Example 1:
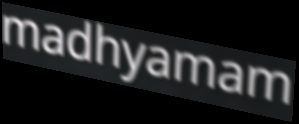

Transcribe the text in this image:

madhyamam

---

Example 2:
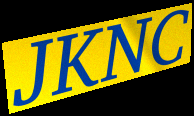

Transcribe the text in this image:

JKNC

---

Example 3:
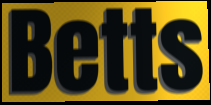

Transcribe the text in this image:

Betts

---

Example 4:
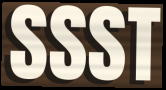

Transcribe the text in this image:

SSST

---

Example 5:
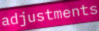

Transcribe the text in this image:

adjustments